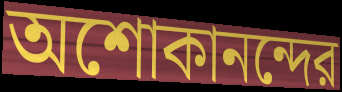
অশোকানন্দের